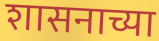
शासनाच्या